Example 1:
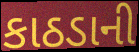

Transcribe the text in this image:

કાઠડાની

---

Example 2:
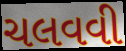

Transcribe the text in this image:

ચલવવી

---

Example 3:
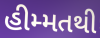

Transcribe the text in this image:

હીમ્મતથી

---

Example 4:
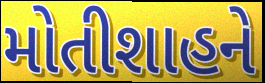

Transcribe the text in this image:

મોતીશાહને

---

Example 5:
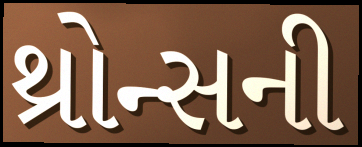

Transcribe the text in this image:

થ્રોન્સની